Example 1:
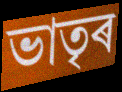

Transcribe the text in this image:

ভাতৃৰ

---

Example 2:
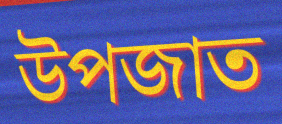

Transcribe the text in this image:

উপজাত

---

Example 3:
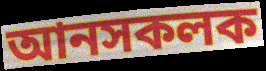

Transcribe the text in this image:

আনসকলক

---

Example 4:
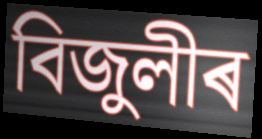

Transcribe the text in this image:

বিজুলীৰ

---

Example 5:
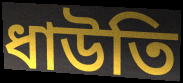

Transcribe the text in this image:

ধাউতি